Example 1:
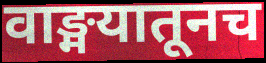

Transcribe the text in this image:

वाङ्मयातूनच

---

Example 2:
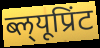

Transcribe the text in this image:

ब्ल्यूप्रिंट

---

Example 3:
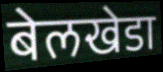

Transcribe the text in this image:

बेलखेडा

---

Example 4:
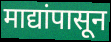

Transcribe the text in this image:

माद्यांपासून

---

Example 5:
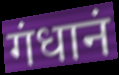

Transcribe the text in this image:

गंधानं